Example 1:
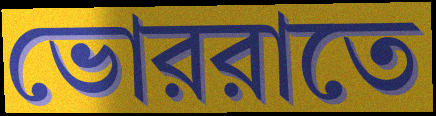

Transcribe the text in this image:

ভোররাতে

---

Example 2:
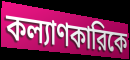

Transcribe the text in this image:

কল্যাণকারিকে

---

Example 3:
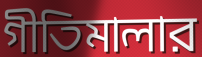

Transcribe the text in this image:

গীতিমালার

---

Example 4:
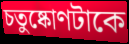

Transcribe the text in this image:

চতুষ্কোণটাকে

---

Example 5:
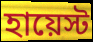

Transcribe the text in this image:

হায়েস্ট